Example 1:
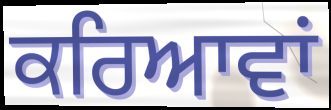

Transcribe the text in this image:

ਕਰਿਆਵਾਂ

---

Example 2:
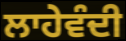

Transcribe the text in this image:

ਲਾਹੇਵੰਦੀ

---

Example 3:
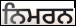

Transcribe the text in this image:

ਨਿਮਰਨ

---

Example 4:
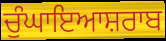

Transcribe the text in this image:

ਚੁੰਘਾਇਆਸ਼ਰਾਬ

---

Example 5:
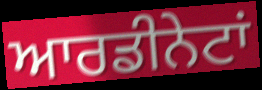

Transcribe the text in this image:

ਆਰਡੀਨੇਟਾਂ